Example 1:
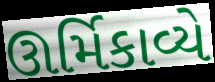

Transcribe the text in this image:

ઊર્મિકાવ્યે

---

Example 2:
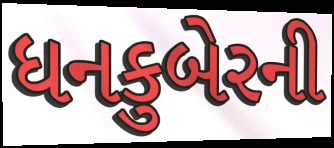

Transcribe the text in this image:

ધનકુબેરની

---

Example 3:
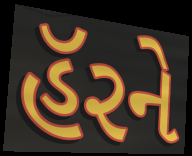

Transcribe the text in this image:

હૅરને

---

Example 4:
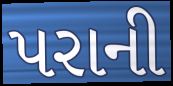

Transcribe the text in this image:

પરાની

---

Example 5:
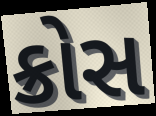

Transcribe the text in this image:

ક્રોસ